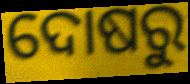
ଦୋଷରୁ